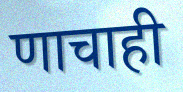
णाचाही